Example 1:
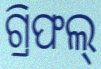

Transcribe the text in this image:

ଗ୍ରିଫଲ୍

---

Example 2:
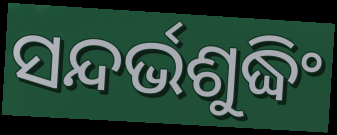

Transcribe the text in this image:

ସନ୍ଦର୍ଭଶୁଦ୍ଧିଂ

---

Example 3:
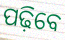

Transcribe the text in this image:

ପଢ଼ିବେ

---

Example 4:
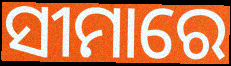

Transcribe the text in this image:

ସୀମାରେ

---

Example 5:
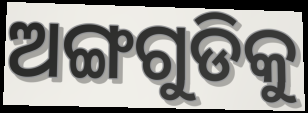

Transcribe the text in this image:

ଅଙ୍ଗଗୁଡିକୁ